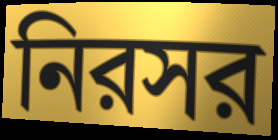
নিরসর